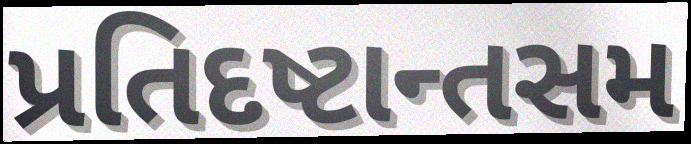
પ્રતિદષ્ટાન્તસમ